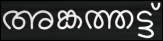
അങ്കത്തട്ട്